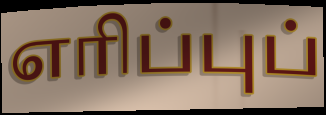
எரிப்புப்